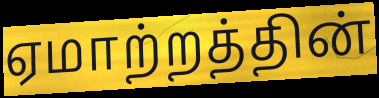
ஏமாற்றத்தின்